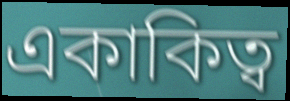
একাকিত্ব